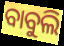
ବାବୁଲି